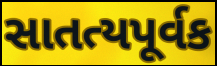
સાતત્યપૂર્વક